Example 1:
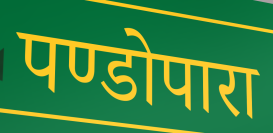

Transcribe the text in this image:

पण्डोपारा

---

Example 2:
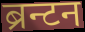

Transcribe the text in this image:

ब्रन्टन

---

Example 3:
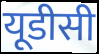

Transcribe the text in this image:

यूडीसी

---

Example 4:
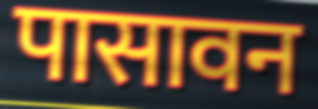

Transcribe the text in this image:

पासावन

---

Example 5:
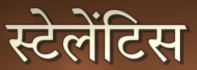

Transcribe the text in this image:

स्टेलेंटिस